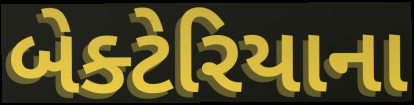
બેક્ટેરિયાના